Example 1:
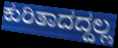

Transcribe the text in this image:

ಕುರಿತಾದದ್ದಲ್ಲ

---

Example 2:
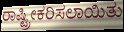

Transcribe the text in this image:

ರಾಷ್ಟ್ರೀಕರಿಸಲಾಯಿತು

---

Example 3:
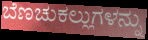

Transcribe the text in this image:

ಬೆಣಚುಕಲ್ಲುಗಳನ್ನು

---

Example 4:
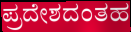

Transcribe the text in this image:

ಪ್ರದೇಶದಂತಹ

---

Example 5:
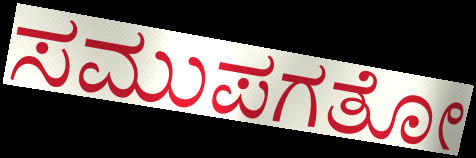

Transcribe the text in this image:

ಸಮುಪಗತೋ